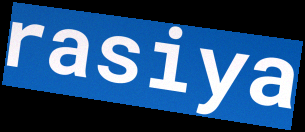
rasiya